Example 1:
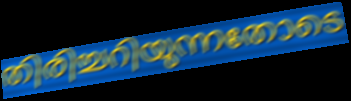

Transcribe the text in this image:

തിരിച്ചറിയുന്നതോടെ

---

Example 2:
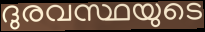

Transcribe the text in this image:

ദുരവസ്ഥയുടെ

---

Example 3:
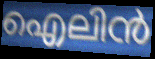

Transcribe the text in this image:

ഐലിൻ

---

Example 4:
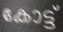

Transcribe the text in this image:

കോട്ട്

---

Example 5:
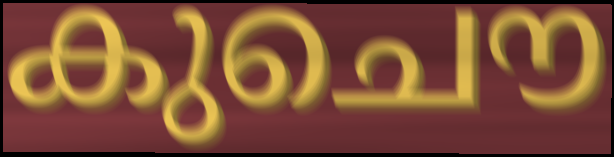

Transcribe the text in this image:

കുചൌ